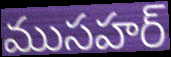
ముసహర్